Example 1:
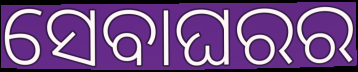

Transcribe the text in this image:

ସେବାଘରର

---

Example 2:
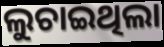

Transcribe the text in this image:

ଲୁଚାଇଥିଲା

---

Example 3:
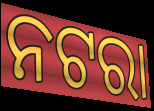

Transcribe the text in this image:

ନଟରା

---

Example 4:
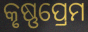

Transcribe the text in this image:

କୃଷ୍ଣପ୍ରେମ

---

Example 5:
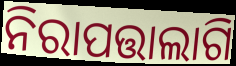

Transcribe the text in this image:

ନିରାପତ୍ତାଲାଗି